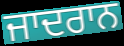
ਜਾਦਰਾਨ